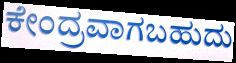
ಕೇಂದ್ರವಾಗಬಹುದು